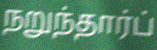
நறுந்தார்ப்